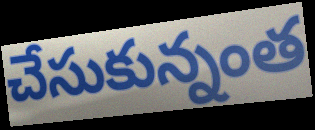
చేసుకున్నంత